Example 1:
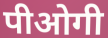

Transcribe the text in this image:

पीओगी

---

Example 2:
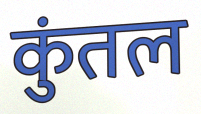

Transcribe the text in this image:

कुंतल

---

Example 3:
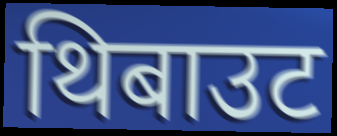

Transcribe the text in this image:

थिबाउट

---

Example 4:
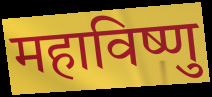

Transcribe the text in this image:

महाविष्णु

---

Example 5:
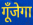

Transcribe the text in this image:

गूँजेगा